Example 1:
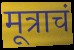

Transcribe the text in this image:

मूत्राचं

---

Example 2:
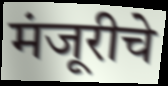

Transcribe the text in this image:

मंजूरीचे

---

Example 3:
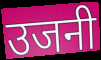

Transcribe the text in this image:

उजनी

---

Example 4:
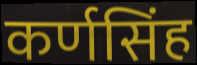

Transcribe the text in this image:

कर्णसिंह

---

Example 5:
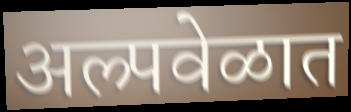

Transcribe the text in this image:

अल्पवेळात